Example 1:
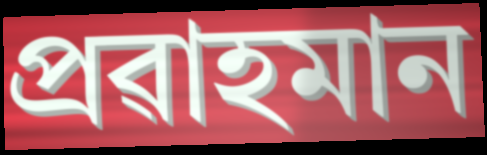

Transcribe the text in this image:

প্ৰৱাহমান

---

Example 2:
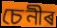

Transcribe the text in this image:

চেনীৰ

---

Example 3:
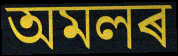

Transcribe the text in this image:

অমলৰ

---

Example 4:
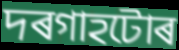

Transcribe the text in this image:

দৰগাহটোৰ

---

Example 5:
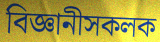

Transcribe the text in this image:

বিজ্ঞানীসকলক